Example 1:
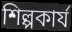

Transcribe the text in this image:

শিল্পকার্য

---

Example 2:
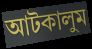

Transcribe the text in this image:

আটকালুম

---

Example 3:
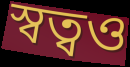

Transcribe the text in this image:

স্বত্বও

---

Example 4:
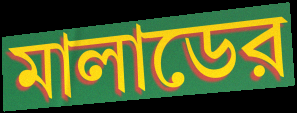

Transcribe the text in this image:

মালাডের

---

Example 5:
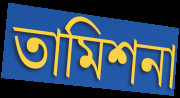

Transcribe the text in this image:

তামিশনা